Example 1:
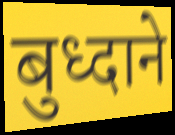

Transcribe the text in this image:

बुध्दाने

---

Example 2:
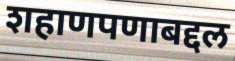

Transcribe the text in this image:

शहाणपणाबद्दल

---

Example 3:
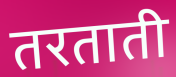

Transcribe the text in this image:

तरताती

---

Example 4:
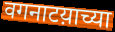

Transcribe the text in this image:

वगनाटय़ाच्या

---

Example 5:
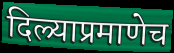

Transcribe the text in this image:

दिल्याप्रमाणेच